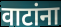
वाटांना